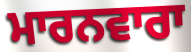
ਮਾਰਨਵਾਰਾ